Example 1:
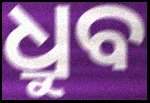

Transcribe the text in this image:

ଧ୍ରୁବ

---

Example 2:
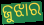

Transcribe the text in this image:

ଜୁଝାର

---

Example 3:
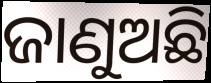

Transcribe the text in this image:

ଜାଣୁଅଛି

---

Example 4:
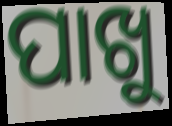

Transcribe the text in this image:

ପାଖୁ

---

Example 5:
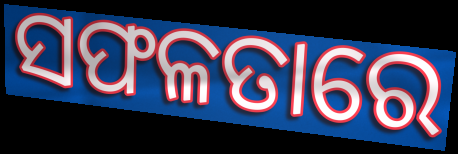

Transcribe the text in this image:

ସଫଳତାରେ